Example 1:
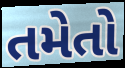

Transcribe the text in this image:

તમેતો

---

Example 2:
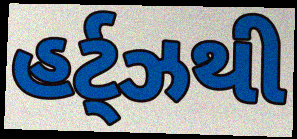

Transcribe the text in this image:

હર્ટ્ઝથી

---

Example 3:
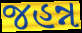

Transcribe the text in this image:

જહન્ન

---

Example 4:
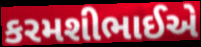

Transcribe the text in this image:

કરમશીભાઈએ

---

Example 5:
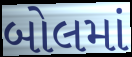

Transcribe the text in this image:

બોલમાં